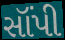
સૉંપી